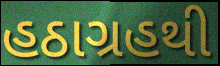
હઠાગ્રહથી